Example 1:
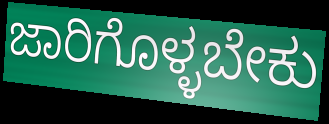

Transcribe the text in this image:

ಜಾರಿಗೊಳ್ಳಬೇಕು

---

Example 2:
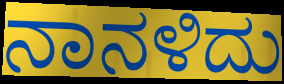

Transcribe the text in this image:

ನಾನಳಿದು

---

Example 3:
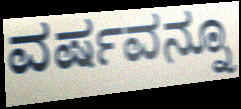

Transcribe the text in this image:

ವರ್ಷವನ್ನೂ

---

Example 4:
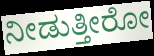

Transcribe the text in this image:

ನೀಡುತ್ತೀರೋ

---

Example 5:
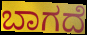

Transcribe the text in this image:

ಬಾಗದೆ